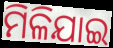
ମିଳିଯାଇ